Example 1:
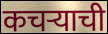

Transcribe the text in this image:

कचऱ्याची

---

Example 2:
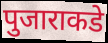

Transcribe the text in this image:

पुजाराकडे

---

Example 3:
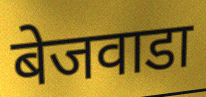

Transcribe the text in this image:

बेजवाडा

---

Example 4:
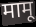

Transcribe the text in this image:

मामू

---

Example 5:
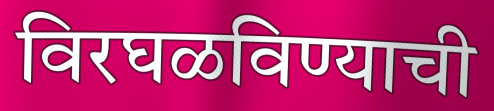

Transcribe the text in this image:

विरघळविण्याची